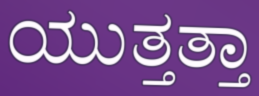
ಯುತ್ತತ್ತಾ